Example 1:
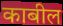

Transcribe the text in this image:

काबील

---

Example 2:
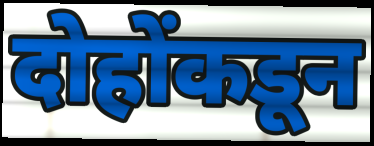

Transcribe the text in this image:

दोहोंकडून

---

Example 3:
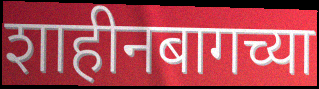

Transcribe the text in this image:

शाहीनबागच्या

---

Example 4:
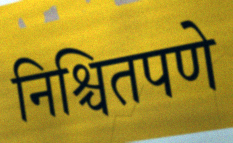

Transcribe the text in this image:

निश्चितपणे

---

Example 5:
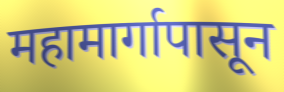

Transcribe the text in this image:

महामार्गापासून